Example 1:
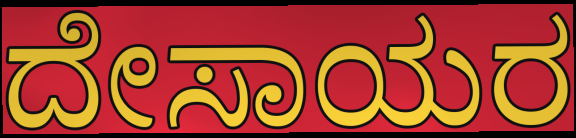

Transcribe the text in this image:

ದೇಸಾಯರ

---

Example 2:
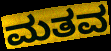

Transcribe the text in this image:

ಮತವ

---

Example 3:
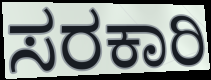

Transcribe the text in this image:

ಸರಕಾರಿ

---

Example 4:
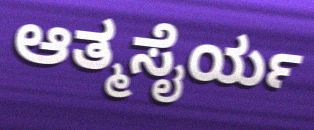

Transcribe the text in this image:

ಆತ್ಮಸೈರ್ಯ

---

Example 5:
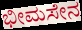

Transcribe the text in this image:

ಭೀಮಸೇನ